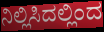
ನಿಲ್ಲಿಸಿದಲ್ಲಿಂದ